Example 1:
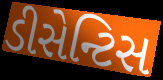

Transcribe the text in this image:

ડીસેન્ટિસ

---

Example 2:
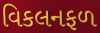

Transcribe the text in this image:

વિકલનફળ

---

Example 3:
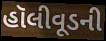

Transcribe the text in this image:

હૉલીવૂડની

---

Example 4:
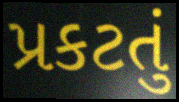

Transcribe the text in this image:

પ્રકટતું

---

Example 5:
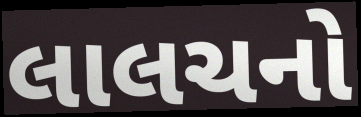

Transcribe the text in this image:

લાલચનો